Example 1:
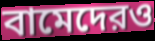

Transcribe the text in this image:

বামেদেরও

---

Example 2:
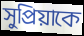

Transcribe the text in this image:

সুপ্রিয়াকে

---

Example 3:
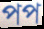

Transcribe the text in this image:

পপ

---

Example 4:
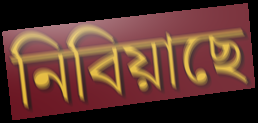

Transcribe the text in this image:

নিবিয়াছে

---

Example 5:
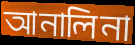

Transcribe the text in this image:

আনালিনা